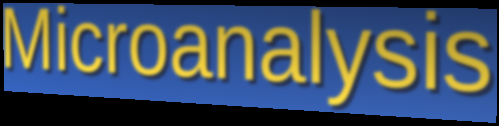
Microanalysis